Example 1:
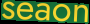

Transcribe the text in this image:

seaon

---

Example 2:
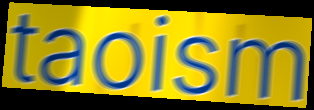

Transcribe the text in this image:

taoism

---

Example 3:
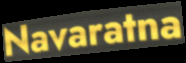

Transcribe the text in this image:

Navaratna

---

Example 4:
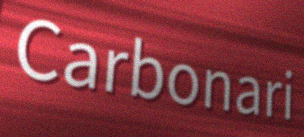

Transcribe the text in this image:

Carbonari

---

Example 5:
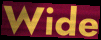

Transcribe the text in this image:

Wide